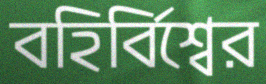
বহির্বিশ্বের